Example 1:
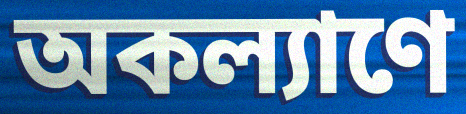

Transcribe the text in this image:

অকল্যাণে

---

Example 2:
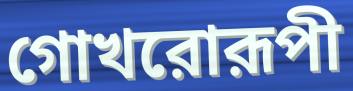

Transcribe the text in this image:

গোখরোরূপী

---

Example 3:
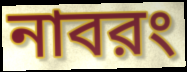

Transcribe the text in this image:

নাবরং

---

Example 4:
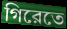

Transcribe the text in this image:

গিরেতে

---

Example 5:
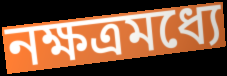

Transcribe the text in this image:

নক্ষত্রমধ্যে